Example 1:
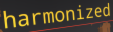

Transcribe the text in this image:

harmonized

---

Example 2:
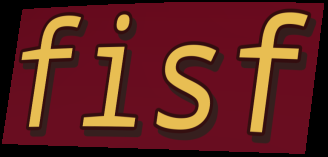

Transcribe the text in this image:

fisf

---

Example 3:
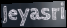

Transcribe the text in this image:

Jeyasri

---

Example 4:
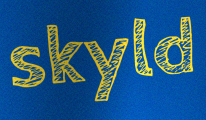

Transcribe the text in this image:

skyld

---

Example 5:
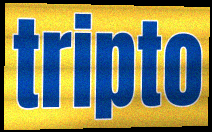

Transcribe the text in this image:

tripto